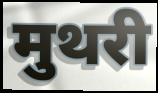
मुथरी